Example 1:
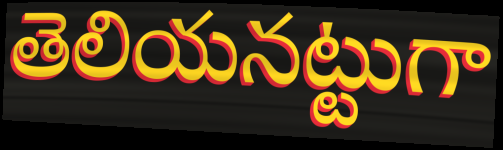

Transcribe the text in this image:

తెలియనట్టుగా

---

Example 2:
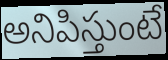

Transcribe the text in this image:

అనిపిస్తుంటే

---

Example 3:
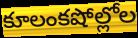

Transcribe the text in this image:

కూలంకషోల్లోల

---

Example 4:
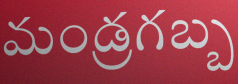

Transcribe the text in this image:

మండ్రగబ్బ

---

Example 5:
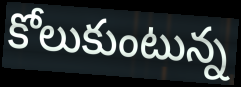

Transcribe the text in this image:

కోలుకుంటున్న